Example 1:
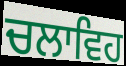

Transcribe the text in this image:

ਚਲਾਵਿਹ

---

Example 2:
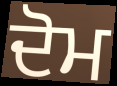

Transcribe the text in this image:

ਦੋਮ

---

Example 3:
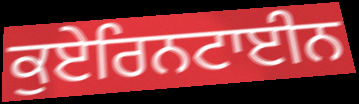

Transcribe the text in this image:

ਕੁਏਰਿਨਟਾਈਨ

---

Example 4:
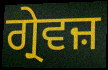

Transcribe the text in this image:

ਗ੍ਰੇਵਜ਼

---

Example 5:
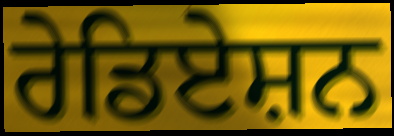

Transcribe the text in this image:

ਰੇਡਿਏਸ਼ਨ